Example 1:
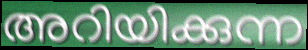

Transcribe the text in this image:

അറിയിക്കുന്ന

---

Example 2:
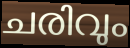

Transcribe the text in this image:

ചരിവും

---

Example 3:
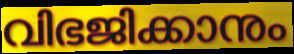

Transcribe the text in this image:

വിഭജിക്കാനും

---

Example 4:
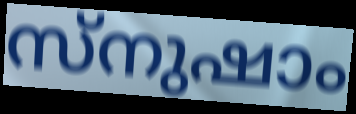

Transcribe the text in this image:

സ്നുഷാം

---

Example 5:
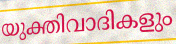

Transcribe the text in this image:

യുക്തിവാദികളും